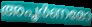
അപൂർണമോ